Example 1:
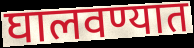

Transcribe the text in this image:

घालवण्यात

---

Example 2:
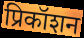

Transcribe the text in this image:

प्रिकॉशन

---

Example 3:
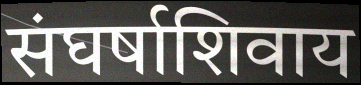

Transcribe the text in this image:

संघर्षाशिवाय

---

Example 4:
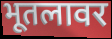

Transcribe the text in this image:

भूतलावर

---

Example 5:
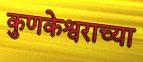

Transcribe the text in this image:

कुणकेश्वराच्या